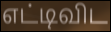
எட்டிவிட